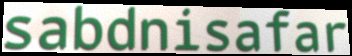
sabdnisafar